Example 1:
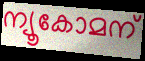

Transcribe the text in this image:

ന്യൂകോമന്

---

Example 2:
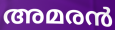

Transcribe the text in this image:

അമരൻ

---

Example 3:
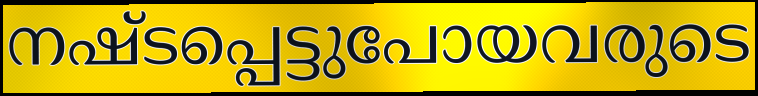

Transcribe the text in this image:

നഷ്ടപ്പെട്ടുപോയവരുടെ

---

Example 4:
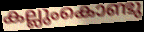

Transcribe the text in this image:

കല്ലുംകൊണ്ടു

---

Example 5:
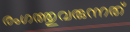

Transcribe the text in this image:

രംഗത്തുവരുന്നത്